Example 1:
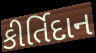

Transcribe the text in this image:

કીર્તિદાન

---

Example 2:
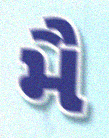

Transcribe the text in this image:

મૈ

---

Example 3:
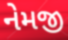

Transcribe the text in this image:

નેમજી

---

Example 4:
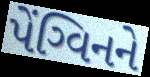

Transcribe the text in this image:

પેંગ્વિનને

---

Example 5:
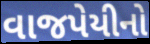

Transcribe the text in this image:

વાજપેયીનો